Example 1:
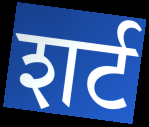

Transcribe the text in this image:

शर्ट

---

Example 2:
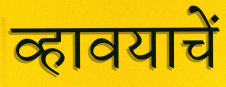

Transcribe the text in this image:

व्हावयाचें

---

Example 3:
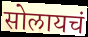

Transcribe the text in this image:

सोलायचं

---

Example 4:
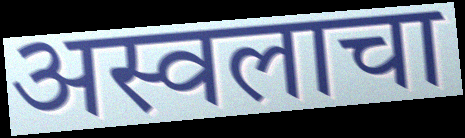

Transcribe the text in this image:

अस्वलाचा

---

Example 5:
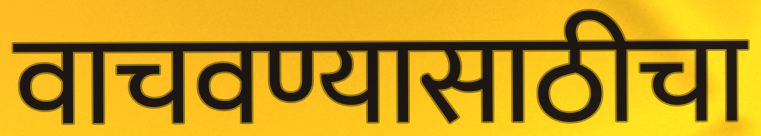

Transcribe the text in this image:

वाचवण्यासाठीचा